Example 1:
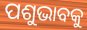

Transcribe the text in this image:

ପଶୁଭାବକୁ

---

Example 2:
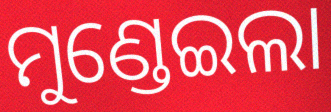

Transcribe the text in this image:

ମୁଣ୍ଡେଇଲା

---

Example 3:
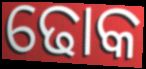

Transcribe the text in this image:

ଢୋକ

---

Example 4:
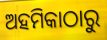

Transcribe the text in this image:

ଅହମିକାଠାରୁ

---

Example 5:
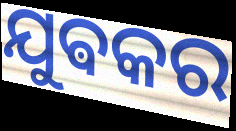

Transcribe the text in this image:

ଯୁଵକର